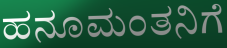
ಹನೂಮಂತನಿಗೆ